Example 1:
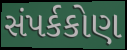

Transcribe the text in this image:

સંપર્કકોણ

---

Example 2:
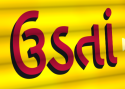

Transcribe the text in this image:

ઉડતાં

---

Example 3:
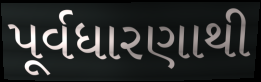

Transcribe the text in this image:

પૂર્વધારણાથી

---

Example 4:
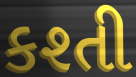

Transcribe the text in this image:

કશ્તી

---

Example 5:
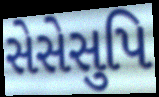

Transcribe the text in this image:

સેસેસુપિ